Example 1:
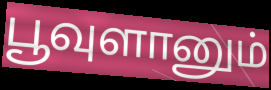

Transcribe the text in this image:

பூவுளானும்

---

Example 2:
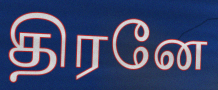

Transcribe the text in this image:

திரனே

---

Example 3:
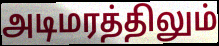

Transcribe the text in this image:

அடிமரத்திலும்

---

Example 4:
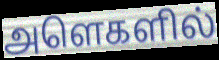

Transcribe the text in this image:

அளெகளில்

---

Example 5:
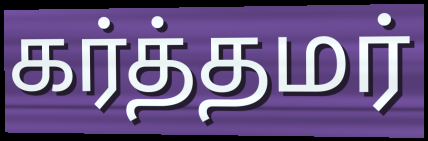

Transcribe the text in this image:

கர்த்தமர்